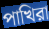
পাখিরা